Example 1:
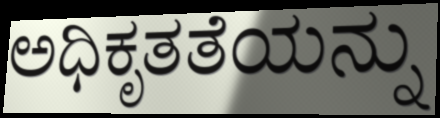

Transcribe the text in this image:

ಅಧಿಕೃತತೆಯನ್ನು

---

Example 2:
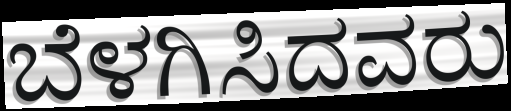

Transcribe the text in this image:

ಬೆಳಗಿಸಿದವರು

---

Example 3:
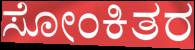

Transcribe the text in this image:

ಸೋಂಕಿತರ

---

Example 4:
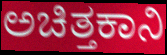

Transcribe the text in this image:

ಅಚಿತ್ತಕಾನಿ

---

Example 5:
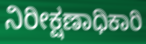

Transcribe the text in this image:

ನಿರೀಕ್ಷಣಾಧಿಕಾರಿ